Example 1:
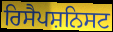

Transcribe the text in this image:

ਰਿਸੈਪਸ਼ਨਿਸਟ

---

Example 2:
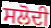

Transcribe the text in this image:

ਸਲੋਦੀ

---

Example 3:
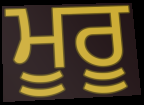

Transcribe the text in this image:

ਮੂਰੂ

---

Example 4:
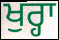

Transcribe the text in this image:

ਖੁਰ੍ਹਾ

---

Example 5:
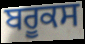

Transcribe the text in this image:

ਬਰੂਕਸ